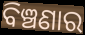
ବିଞ୍ଚଣାର